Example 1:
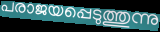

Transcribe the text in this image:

പരാജയപ്പെടുത്തുന്നു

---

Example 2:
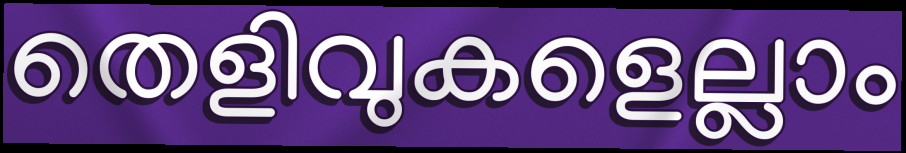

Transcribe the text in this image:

തെളിവുകളെല്ലാം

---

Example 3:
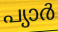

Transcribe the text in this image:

പ്യാർ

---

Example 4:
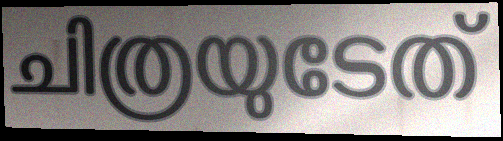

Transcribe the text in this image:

ചിത്രയുടേത്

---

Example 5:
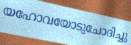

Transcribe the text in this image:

യഹോവയോടുചോദിച്ചു